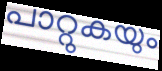
പാറ്റുകയും